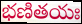
భణితయః